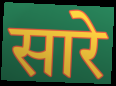
सारे